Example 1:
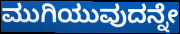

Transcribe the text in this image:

ಮುಗಿಯುವುದನ್ನೇ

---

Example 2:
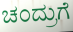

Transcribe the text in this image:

ಚಂದ್ರುಗೆ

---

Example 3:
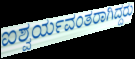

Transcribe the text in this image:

ಐಶ್ವರ್ಯವಂತರಾಗಿದ್ದರು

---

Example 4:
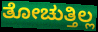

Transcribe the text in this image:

ತೋಚುತ್ತಿಲ್ಲ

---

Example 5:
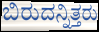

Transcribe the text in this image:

ಬಿರುದನ್ನಿತ್ತರು